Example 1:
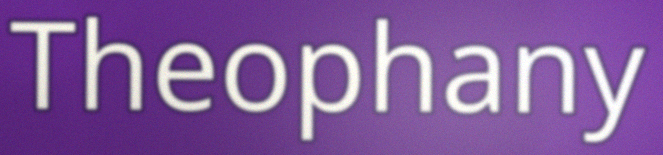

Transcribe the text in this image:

Theophany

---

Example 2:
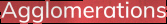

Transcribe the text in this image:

Agglomerations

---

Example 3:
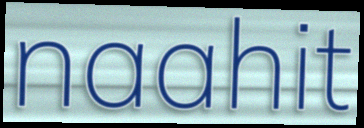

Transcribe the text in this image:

naahit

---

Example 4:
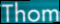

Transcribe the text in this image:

Thom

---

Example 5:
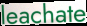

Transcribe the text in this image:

leachate